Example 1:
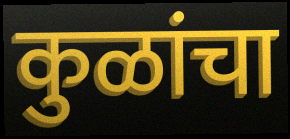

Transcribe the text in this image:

कुळांचा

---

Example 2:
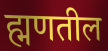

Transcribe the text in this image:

ह्मणतील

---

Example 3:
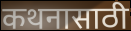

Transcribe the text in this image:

कथनासाठी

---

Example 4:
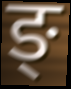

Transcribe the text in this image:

ङ्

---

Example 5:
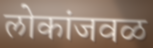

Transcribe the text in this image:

लोकांजवळ